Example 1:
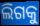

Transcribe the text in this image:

ଲିଗକୁ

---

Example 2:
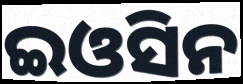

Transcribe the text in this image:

ଇଓସିନ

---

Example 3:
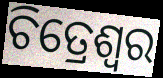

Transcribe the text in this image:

ଚିତ୍ରେଶ୍ୱର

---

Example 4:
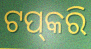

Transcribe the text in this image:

ଟପ୍‌କରି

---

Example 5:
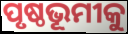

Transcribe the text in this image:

ପୃଷ୍ଠଭୂମୀକୁ